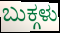
ಬುಕ್ಗಳು